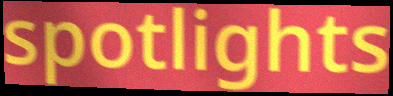
spotlights